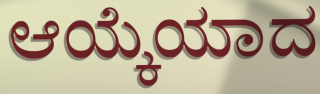
ಆಯ್ಕೆಯಾದ